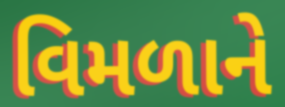
વિમળાને